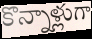
కొన్నాళ్లుగా